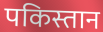
पकिस्तान